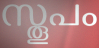
സ്തൂപം